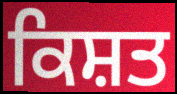
ਕਿਸ਼ਤ